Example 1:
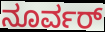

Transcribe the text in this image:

ನೂರ್ವರ್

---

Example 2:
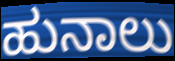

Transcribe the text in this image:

ಹುನಾಲು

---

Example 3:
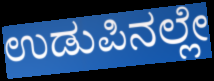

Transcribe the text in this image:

ಉಡುಪಿನಲ್ಲೇ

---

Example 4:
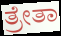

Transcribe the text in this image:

ತ್ರೇತಾ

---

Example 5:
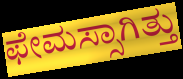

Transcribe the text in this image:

ಫೇಮಸ್ಸಾಗಿತ್ತು